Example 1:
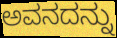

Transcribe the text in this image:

ಅವನದನ್ನು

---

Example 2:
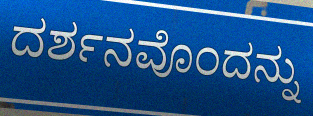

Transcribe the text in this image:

ದರ್ಶನವೊಂದನ್ನು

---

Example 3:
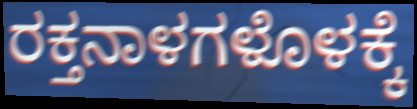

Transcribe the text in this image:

ರಕ್ತನಾಳಗಳೊಳಕ್ಕೆ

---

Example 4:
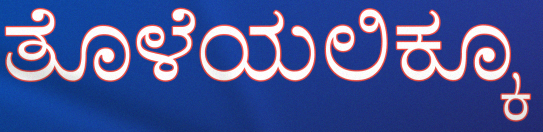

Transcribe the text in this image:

ತೊಳೆಯಲಿಕ್ಕೂ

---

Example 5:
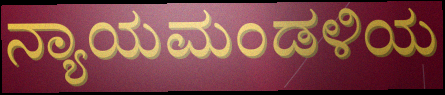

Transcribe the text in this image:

ನ್ಯಾಯಮಂಡಳಿಯ